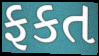
ફકત